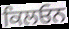
ਕਿਲਓਨ